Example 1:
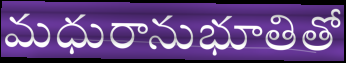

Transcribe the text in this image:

మధురానుభూతితో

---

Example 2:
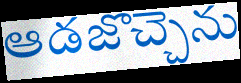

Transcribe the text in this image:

ఆడజొచ్చెను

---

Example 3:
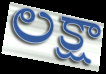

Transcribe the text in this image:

లక్షా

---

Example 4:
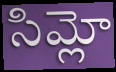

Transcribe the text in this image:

సిమ్లో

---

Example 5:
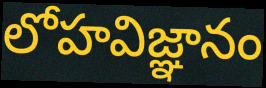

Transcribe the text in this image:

లోహవిజ్ఞానం